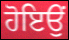
ਹੋਇਉਂ